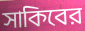
সাকিবের